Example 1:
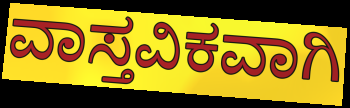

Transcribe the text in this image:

ವಾಸ್ತವಿಕವಾಗಿ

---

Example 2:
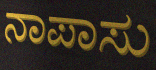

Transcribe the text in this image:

ನಾಪಾಸು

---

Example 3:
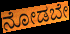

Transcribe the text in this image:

ನೋಡಬೇ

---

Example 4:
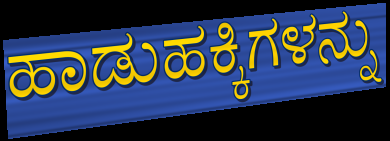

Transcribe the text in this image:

ಹಾಡುಹಕ್ಕಿಗಳನ್ನು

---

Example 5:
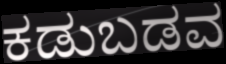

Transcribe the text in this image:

ಕಡುಬಡವ